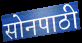
सोनपाठी